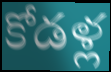
కోడళ్ల